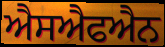
ਐਸਐਫਐਨ